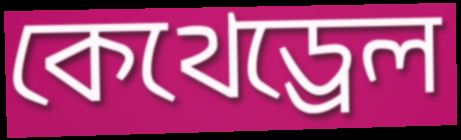
কেথেড্ৰেল